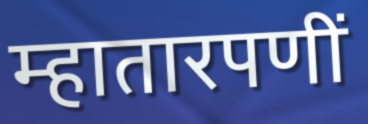
म्हातारपणीं